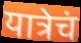
यात्रेचं